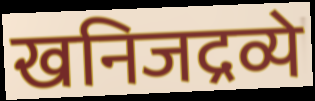
खनिजद्रव्ये